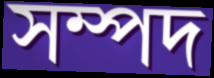
সম্পদ